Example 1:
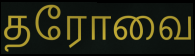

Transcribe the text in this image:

தரோவை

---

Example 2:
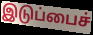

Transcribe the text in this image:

இடுப்பைச்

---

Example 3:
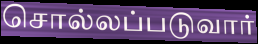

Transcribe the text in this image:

சொல்லப்படுவார்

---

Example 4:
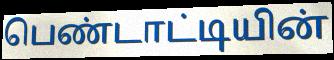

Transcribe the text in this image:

பெண்டாட்டியின்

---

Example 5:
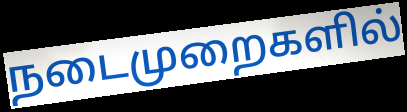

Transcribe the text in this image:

நடைமுறைகளில்